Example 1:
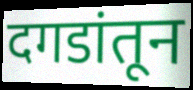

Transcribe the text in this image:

दगडांतून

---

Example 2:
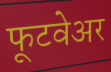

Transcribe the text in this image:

फूटवेअर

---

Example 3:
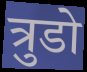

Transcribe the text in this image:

त्रुडो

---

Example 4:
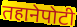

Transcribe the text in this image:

तहानेपोटी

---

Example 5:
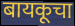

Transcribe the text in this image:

बायकूचा